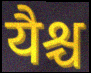
यैश्च